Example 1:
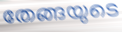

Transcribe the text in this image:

തേങ്ങയുടെ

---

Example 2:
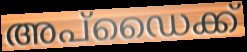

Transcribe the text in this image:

അപ്ഡൈക്ക്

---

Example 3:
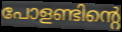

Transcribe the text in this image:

പോളണ്ടിന്റെ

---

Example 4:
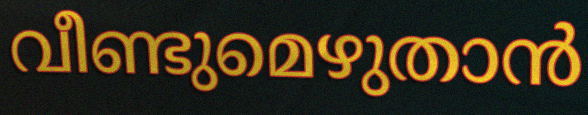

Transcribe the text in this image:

വീണ്ടുമെഴുതാൻ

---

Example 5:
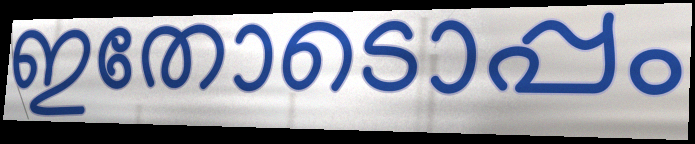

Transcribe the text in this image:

ഇതോടൊപ്പം